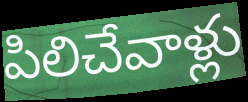
పిలిచేవాళ్లు